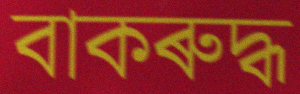
বাকৰুদ্ধ